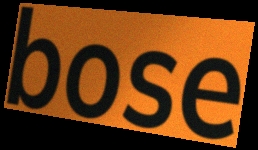
bose